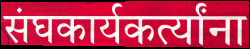
संघकार्यकर्त्यांना